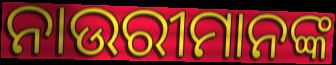
ନାଉରୀମାନଙ୍କ